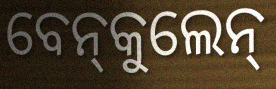
ବେନ୍‍କୁଲେନ୍